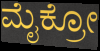
ಮೈಕ್ರೋ